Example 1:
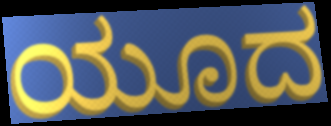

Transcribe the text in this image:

ಯೂದ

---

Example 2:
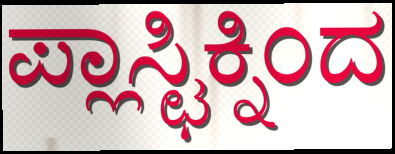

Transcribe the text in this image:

ಪ್ಲಾಸ್ಟಿಕ್ನಿಂದ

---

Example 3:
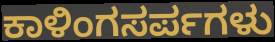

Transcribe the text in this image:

ಕಾಳಿಂಗಸರ್ಪಗಳು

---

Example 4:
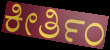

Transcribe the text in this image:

ಕೀರ್ತಿಂ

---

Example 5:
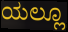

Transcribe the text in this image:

ಯಲ್ಲೂ